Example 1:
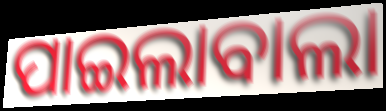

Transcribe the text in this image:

ପାଇଲାବାଲା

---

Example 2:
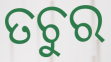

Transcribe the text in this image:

ତଚୁର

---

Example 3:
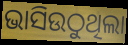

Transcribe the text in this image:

ଭାସିଉଠୁଥିଲା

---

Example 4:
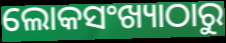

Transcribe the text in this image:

ଲୋକସଂଖ୍ୟାଠାରୁ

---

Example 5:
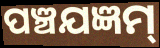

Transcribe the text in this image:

ପଞ୍ଚଯଜ୍ଞମ୍